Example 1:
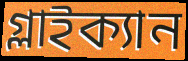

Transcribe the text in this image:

গ্লাইক্যান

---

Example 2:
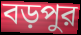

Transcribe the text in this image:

বড়পুর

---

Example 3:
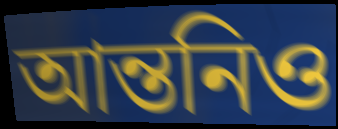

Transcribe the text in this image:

আন্তনিও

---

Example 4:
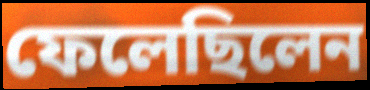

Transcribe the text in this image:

ফেলেছিলেন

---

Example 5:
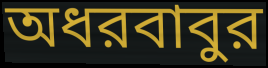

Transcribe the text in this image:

অধরবাবুর